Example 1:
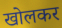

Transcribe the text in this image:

खोलकर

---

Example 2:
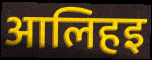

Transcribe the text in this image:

आलिहइ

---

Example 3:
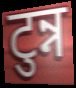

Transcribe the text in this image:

टुन्न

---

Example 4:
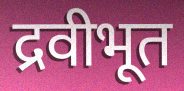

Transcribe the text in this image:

द्रवीभूत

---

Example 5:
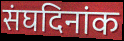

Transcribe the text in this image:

संघदिनांक